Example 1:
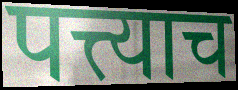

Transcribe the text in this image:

पत्त्याच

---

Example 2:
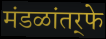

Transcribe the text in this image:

मंडळांतर्फे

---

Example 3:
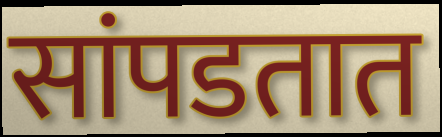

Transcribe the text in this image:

सांपडतात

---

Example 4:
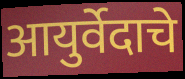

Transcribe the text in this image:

आयुर्वेदाचे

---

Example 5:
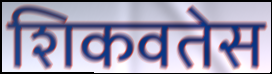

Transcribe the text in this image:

शिकवतेस